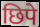
छिपे